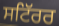
ਸਟਿੱਰਰ